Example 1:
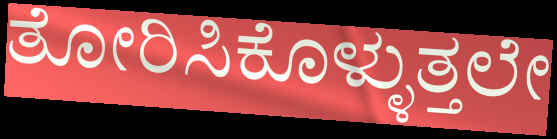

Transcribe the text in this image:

ತೋರಿಸಿಕೊಳ್ಳುತ್ತಲೇ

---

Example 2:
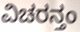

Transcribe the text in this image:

ವಿಚರನ್ತಂ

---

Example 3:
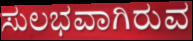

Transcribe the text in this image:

ಸುಲಭವಾಗಿರುವ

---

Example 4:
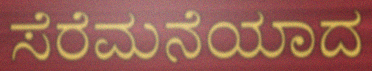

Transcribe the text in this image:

ಸೆರೆಮನೆಯಾದ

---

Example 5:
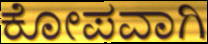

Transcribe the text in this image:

ಕೋಪವಾಗಿ